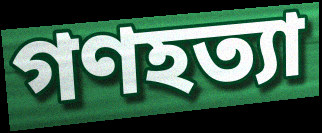
গণহত্যা